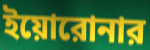
ইয়োরোনার